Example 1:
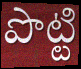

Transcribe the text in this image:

పొట్టి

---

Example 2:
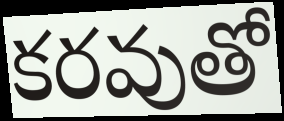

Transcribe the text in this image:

కరవుతో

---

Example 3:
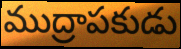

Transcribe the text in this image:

ముద్రాపకుడు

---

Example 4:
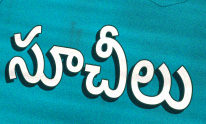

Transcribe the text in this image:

సూచీలు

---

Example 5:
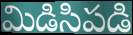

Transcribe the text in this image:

మిడిసిపడి